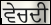
ਵੇਚਦੀ